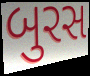
બુરસ